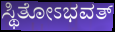
ಸ್ಥಿತೋಽಭವತ್